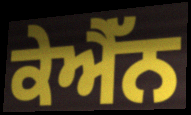
ਕੇਐੱਨ